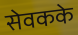
सेवकके